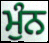
ਮੁੰਨ